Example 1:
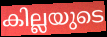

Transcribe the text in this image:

കില്ലയുടെ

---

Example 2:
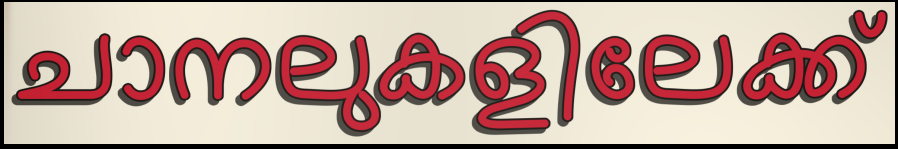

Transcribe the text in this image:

ചാനലുകളിലേക്ക്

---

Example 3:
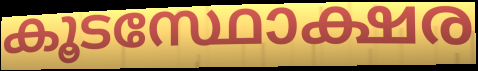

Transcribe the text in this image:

കൂടസ്ഥോക്ഷര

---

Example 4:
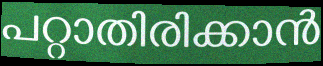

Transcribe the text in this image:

പറ്റാതിരിക്കാൻ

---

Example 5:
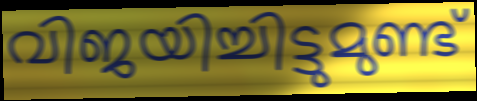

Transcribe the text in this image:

വിജയിച്ചിട്ടുമുണ്ട്